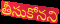
తీసుకోనని